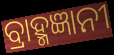
ବ୍ରାହ୍ମଜ୍ଞାନୀ